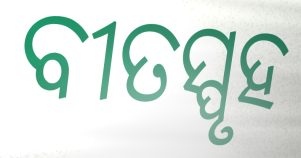
ବୀତସ୍ପୃହ